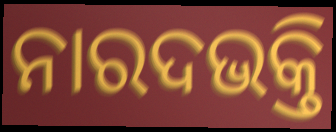
ନାରଦଭକ୍ତି